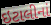
ઇટાલીનાં